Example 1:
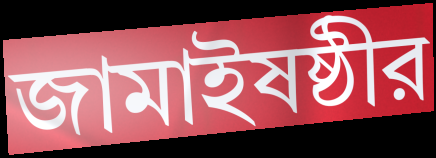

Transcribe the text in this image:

জামাইষষ্ঠীর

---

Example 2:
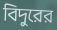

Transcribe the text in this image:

বিদুরের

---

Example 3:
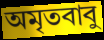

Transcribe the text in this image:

অমৃতবাবু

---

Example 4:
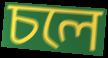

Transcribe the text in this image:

চলে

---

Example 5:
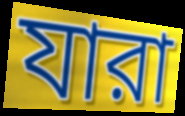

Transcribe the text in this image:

যারা